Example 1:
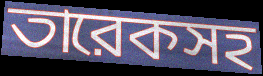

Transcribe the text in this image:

তারেকসহ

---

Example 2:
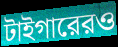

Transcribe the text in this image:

টাইগারেরও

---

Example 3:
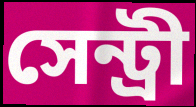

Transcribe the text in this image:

সেন্ট্রী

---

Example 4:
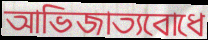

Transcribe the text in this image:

আভিজাত্যবোধে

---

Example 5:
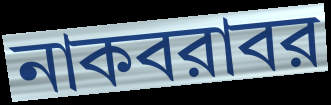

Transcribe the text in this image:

নাকবরাবর